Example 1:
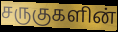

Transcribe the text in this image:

சருகுகளின்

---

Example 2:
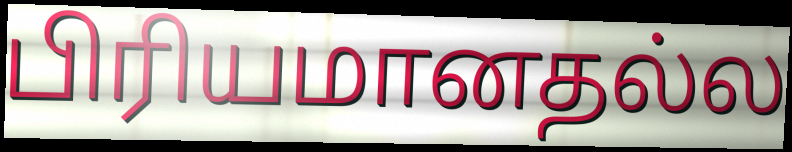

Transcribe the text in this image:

பிரியமானதல்ல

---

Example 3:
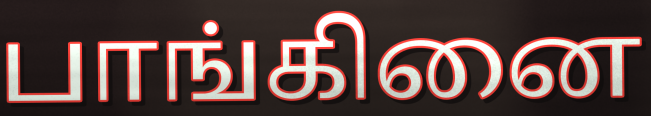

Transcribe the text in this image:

பாங்கினை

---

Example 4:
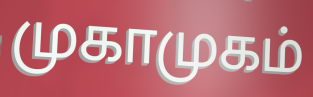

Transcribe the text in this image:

முகாமுகம்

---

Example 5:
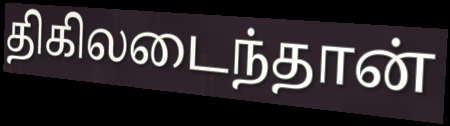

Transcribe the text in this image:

திகிலடைந்தான்